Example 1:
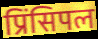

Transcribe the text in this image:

प्रिंसिपल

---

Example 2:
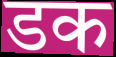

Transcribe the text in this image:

डक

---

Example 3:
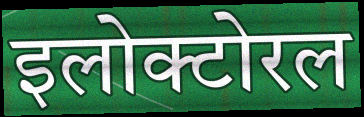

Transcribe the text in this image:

इलोक्टोरल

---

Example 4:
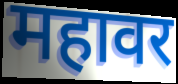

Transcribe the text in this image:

महावर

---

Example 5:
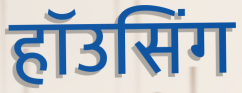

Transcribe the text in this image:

हॉउसिंग